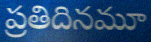
ప్రతిదినమూ